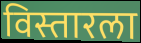
विस्तारला